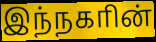
இந்நகரின்